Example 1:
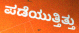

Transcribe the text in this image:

ಪಡೆಯುತ್ತಿತ್ತು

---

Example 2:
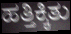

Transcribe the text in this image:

ಹತ್ತಿಕ್ಕಿತು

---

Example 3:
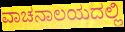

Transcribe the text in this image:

ವಾಚನಾಲಯದಲ್ಲಿ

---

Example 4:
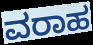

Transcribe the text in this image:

ವರಾಹ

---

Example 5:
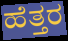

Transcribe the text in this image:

ಹೆತ್ತರ